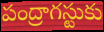
పంద్రాగస్టుకు